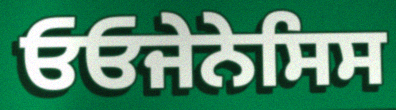
ਓਓਜੇਨੇਸਿਸ